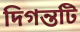
দিগন্তটি